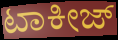
ಟಾಕೀಜ್